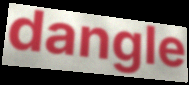
dangle